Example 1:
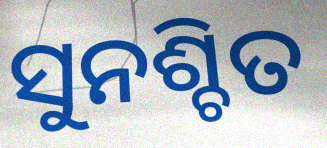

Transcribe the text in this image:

ସୁନଶ୍ଚିତ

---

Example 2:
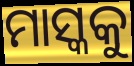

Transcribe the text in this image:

ମାସ୍କକୁ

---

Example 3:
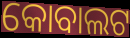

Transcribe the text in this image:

କୋବାଲଟ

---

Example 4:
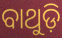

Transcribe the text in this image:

ବାଥୁଡ଼ି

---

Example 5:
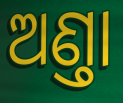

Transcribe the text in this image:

ଅଣ୍ତା